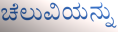
ಚೆಲುವಿಯನ್ನು